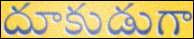
దూకుడుగా